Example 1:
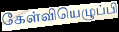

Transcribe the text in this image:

கேள்வியெழுப்பி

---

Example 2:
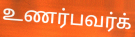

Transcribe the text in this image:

உணர்பவர்க்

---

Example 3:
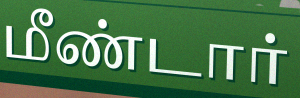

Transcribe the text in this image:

மீண்டார்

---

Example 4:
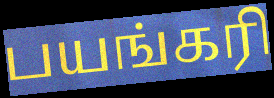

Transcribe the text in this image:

பயங்கரி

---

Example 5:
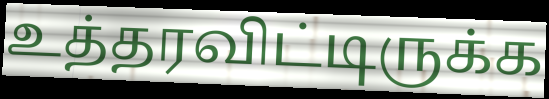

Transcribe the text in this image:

உத்தரவிட்டிருக்க